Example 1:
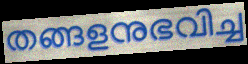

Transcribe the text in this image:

തങ്ങളനുഭവിച്ച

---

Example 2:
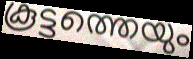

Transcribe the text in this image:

കൂട്ടത്തെയും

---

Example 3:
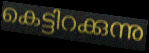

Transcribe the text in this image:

കെട്ടിറക്കുന്നു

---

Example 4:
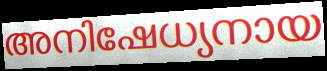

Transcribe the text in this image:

അനിഷേധ്യനായ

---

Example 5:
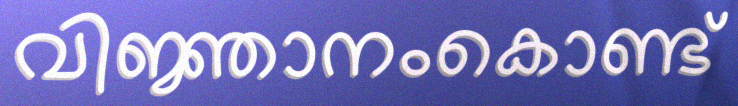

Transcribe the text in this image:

വിജ്ഞാനംകൊണ്ട്